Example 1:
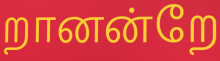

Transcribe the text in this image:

றானன்றே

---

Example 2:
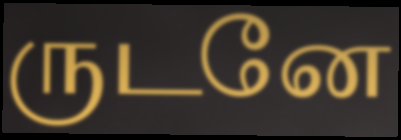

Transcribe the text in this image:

ருடனே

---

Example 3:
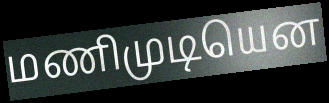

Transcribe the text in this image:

மணிமுடியென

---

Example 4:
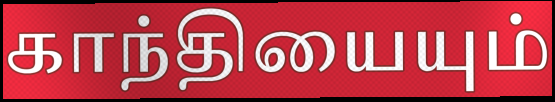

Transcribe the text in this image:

காந்தியையும்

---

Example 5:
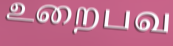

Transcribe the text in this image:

உறைபவ